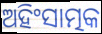
ଅହିଂସାତ୍ମକ